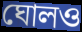
ঘোলও